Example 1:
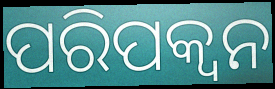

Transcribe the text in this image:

ପରିପକ୍ବନ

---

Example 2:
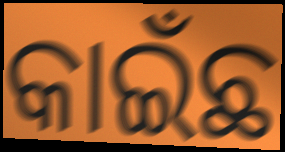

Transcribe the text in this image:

କାଇଁଛ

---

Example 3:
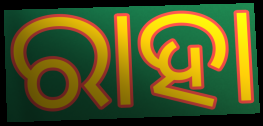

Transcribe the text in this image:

ରାହା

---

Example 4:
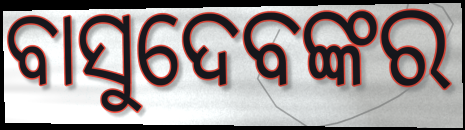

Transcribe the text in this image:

ବାସୁଦେବଙ୍କର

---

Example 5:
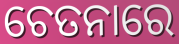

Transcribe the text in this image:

ଚେତନାରେ